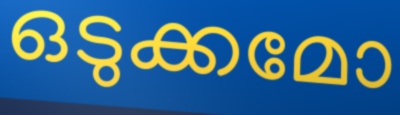
ഒടുക്കമോ